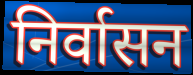
निर्वासन